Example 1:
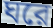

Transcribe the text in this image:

ঘরে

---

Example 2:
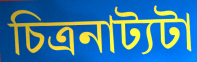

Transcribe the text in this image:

চিত্রনাট্যটা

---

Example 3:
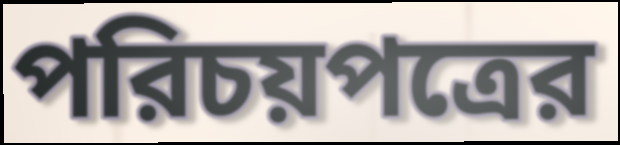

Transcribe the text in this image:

পরিচয়পত্রের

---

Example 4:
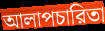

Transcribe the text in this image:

আলাপচারিতা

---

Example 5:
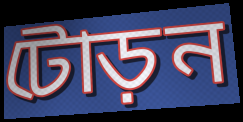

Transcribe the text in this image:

টোড়ন